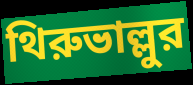
থিরুভাল্লুর